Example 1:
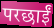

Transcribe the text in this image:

परछाईं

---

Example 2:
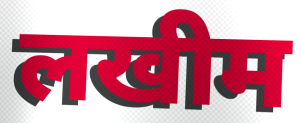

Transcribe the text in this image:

लखीम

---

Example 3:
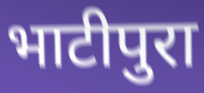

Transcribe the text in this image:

भाटीपुरा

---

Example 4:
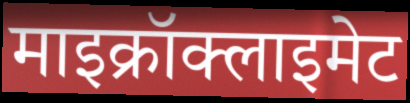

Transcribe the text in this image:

माइक्रॉक्लाइमेट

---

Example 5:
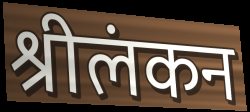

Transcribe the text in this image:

श्रीलंकन